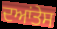
ਦਆਂਤੇਸ